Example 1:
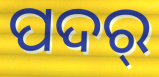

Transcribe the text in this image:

ପଦର୍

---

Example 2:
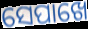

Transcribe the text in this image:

ସେପାଖେ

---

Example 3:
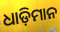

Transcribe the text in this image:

ଧାଡ଼ିମାନ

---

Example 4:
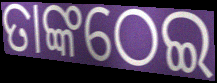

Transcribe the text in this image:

ତାଙ୍କଠେଇ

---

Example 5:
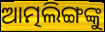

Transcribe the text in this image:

ଆତ୍ମଲିଙ୍ଗଙ୍କୁ